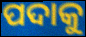
ପଦାକୁ